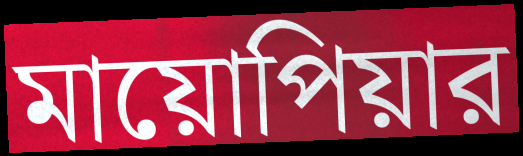
মায়োপিয়ার